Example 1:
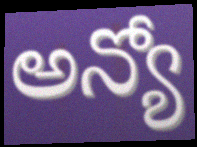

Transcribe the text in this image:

అన్యో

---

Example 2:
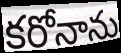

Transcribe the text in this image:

కరోనాను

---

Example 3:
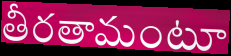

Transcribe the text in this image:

తీరతామంటూ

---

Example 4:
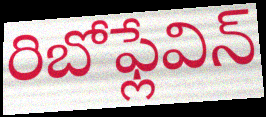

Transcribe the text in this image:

రిబోఫ్లేవిన్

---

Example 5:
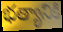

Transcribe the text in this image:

భత్యానికి